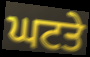
ਘਟਤੇ